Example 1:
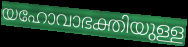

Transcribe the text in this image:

യഹോവാഭക്തിയുള്ള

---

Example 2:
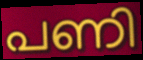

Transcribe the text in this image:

പണി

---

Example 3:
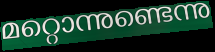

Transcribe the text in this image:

മറ്റൊന്നുണ്ടെന്നു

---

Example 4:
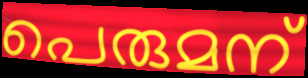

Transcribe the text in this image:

പെരുമന്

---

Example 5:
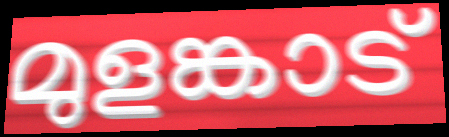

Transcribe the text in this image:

മുളങ്കാട്